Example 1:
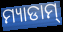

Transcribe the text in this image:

ମ୍ଯାଡାମ୍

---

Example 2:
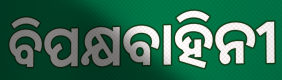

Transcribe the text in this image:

ବିପକ୍ଷବାହିନୀ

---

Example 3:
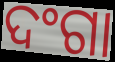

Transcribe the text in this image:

ଦଂଗା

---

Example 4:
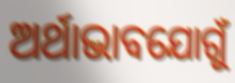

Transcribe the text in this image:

ଅର୍ଥାଭାବଯୋଗୁଁ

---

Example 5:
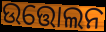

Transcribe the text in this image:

ଉତ୍ତୋଲନ